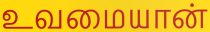
உவமையான்